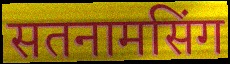
सतनामसिंग